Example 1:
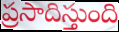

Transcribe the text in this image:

ప్రసాదిస్తుంది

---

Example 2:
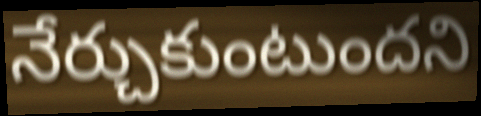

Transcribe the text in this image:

నేర్చుకుంటుందని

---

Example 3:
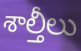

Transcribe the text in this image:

శాల్తీలు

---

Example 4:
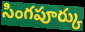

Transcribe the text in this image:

సింగపూర్కు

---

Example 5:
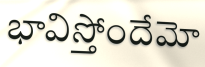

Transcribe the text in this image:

భావిస్తోందేమో